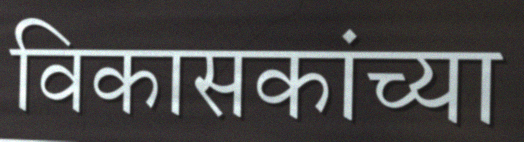
विकासकांच्या